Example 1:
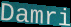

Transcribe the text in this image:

Damri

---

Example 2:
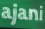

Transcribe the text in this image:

ajani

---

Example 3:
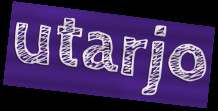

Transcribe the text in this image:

utarjo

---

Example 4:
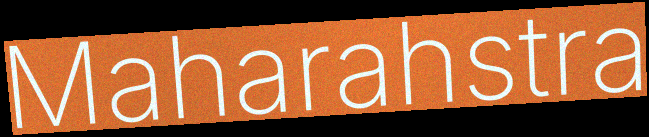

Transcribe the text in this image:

Maharahstra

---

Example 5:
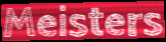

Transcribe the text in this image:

Meisters